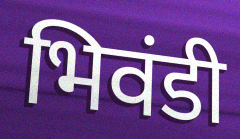
भिवंडी